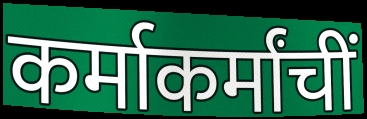
कर्माकर्मांचीं